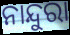
ନାନ୍ଦୁରା